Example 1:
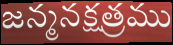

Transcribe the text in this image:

జన్మనక్షత్రము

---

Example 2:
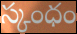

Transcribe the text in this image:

స్కంధం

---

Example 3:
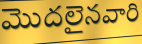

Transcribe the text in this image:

మొదలైనవారి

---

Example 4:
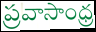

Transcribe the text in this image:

ప్రవాసాంధ్ర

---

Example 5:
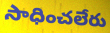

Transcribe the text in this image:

సాధించలేరు